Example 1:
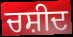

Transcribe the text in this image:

ਚਸ਼ੀਦ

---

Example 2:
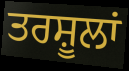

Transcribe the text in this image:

ਤਰਸ਼ੂਲਾਂ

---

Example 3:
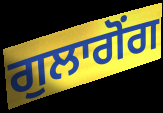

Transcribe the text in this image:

ਗੁਲਾਗੋਂਗ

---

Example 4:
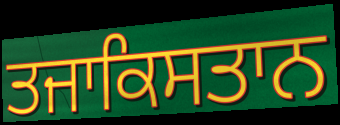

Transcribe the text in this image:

ਤਜਾਕਿਸਤਾਨ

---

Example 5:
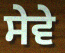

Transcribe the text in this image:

ਸੇਵੇ